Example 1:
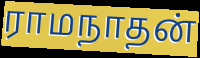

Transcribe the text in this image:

ராமநாதன்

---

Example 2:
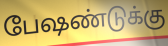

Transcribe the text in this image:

பேஷண்டுக்கு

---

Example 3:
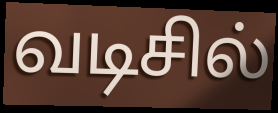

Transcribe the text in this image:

வடிசில்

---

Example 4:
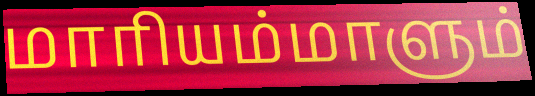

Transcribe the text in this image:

மாரியம்மாளும்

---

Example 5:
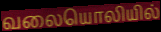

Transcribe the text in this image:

வலையொலியில்